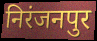
निरंजनपुर